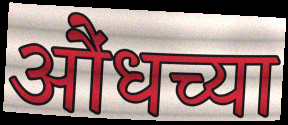
औंधच्या